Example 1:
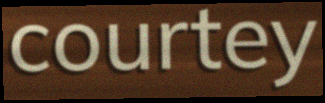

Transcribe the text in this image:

courtey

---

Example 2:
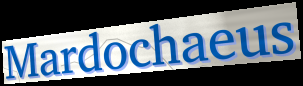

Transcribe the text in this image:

Mardochaeus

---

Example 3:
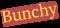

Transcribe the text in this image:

Bunchy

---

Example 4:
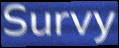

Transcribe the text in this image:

Survy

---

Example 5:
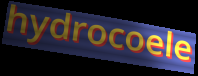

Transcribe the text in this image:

hydrocoele